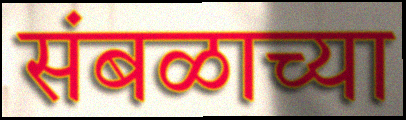
संबळाच्या